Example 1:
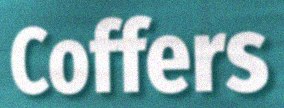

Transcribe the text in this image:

Coffers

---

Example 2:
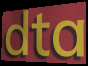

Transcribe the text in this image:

dta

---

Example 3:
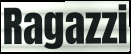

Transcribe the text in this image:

Ragazzi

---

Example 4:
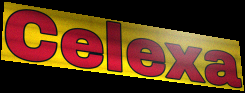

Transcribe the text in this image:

Celexa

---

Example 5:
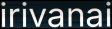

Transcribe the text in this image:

irivanai